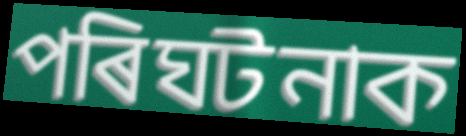
পৰিঘটনাক